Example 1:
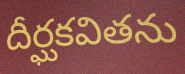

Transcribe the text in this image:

దీర్ఘకవితను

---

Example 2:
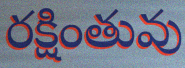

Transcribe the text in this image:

రక్షింతువు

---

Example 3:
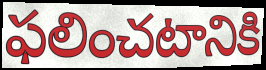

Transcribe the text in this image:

ఫలించటానికి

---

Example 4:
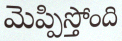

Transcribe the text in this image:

మెప్పిస్తోంది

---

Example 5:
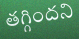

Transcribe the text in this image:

తగ్గిందని